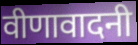
वीणावादनी